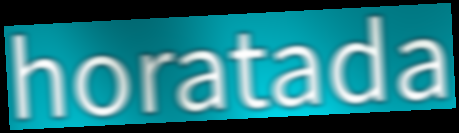
horatada